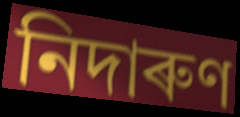
নিদাৰুণ